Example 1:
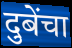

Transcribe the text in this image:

दुबेंचा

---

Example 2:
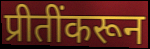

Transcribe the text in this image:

प्रीतींकरून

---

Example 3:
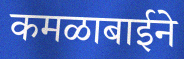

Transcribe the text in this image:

कमळाबाईने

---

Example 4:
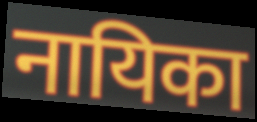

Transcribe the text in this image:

नायिका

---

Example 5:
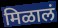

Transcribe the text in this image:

मिळालं